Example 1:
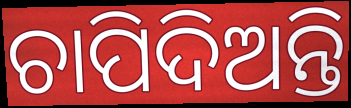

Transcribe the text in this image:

ଚାପିଦିଅନ୍ତି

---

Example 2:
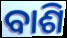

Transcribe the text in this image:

ବାଶି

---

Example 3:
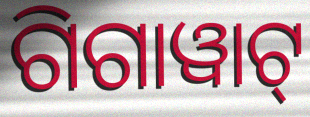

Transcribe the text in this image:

ଗିଗାୱାଟ୍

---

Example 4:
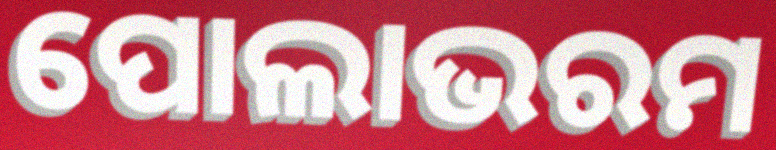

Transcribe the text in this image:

ପୋଲାଭରମ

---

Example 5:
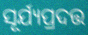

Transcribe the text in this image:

ସୂର୍ଯ୍ୟପ୍ରଦତ୍ତ